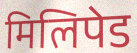
मिलिपेड